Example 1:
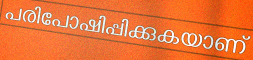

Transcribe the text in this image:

പരിപോഷിപ്പിക്കുകയാണ്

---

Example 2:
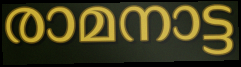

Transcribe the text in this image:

രാമനാട്ട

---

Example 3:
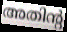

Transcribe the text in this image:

അതിന്റ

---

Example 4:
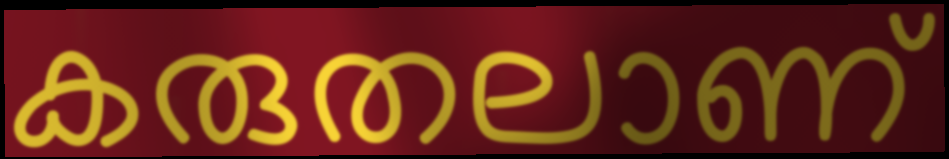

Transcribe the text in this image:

കരുതലാണ്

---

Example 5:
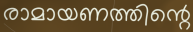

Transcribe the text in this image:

രാമായണത്തിന്റെ